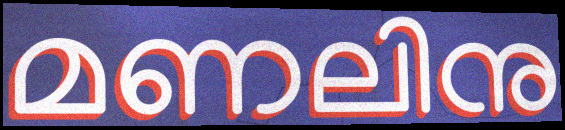
മണലിനു